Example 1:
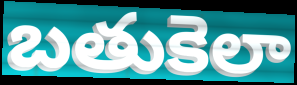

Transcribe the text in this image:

బతుకెలా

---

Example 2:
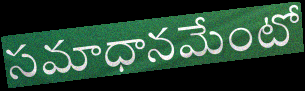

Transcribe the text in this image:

సమాధానమేంటో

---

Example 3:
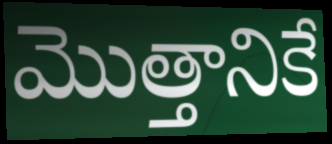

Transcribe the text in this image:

మొత్తానికే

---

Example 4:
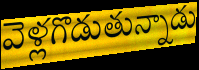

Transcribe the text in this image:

వెళ్లగొడుతున్నాడు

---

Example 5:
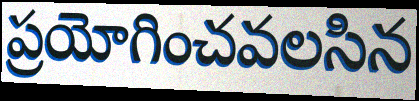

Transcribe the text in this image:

ప్రయోగించవలసిన